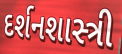
દર્શનશાસ્ત્રી